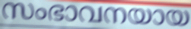
സംഭാവനയായ